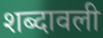
शब्दावली